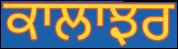
ਕਾਲਾਝਰ